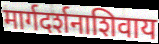
मार्गदर्शनाशिवाय